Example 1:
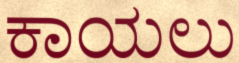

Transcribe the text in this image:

ಕಾಯಲು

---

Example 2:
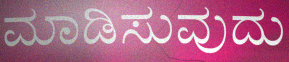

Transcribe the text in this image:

ಮಾಡಿಸುವುದು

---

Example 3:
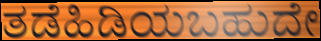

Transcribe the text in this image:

ತಡೆಹಿಡಿಯಬಹುದೇ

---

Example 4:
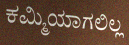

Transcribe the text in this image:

ಕಮ್ಮಿಯಾಗಲಿಲ್ಲ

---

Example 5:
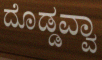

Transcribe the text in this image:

ದೊಡ್ಡವ್ವಾ